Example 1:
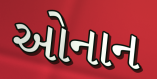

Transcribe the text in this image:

ઓનાન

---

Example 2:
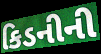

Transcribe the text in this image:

કિડનીની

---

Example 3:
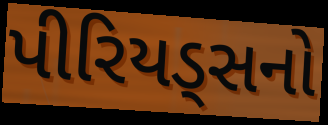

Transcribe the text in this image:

પીરિયડ્સનો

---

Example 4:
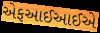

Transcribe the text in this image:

એફઆઈઆઈએ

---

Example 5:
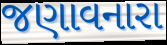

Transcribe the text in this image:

જણાવનારા